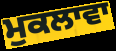
ਮੁਕਲਾਵਾ